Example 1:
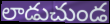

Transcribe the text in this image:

లాడుచుండ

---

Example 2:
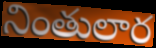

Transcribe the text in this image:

నింతులార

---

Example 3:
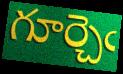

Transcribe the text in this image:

గూర్చెఁ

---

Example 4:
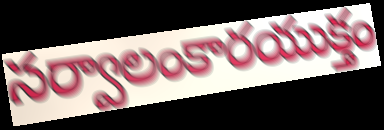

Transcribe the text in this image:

సర్వాలంకారయుక్తం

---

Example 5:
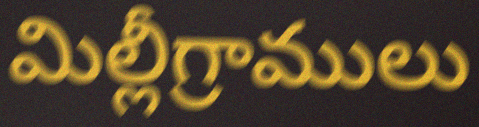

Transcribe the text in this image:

మిల్లీగ్రాములు